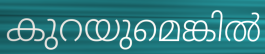
കുറയുമെങ്കിൽ